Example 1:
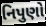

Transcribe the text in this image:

નિપુણો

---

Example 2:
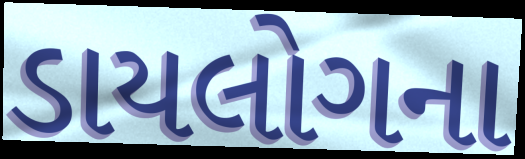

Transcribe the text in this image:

ડાયલોગના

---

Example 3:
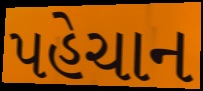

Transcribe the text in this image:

પહેચાન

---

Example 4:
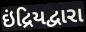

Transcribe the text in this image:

ઇંદ્રિયદ્વારા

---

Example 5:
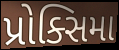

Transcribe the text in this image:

પ્રોક્સિમા